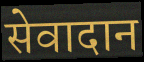
सेवादान